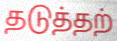
தடுத்தற்